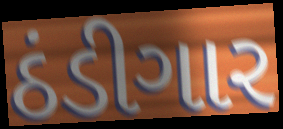
ઠંડીગાર